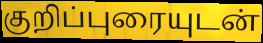
குறிப்புரையுடன்